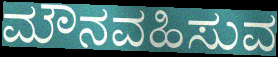
ಮೌನವಹಿಸುವ